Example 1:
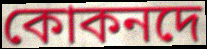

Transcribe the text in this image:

কোকনদে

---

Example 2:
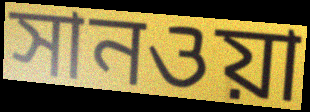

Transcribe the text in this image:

সানওয়া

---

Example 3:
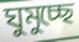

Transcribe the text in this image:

ঘুমুচ্ছে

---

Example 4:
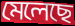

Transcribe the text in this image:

মেলেছে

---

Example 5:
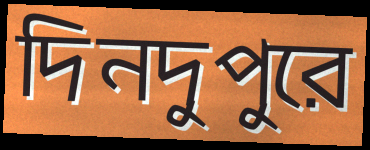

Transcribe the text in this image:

দিনদুপুরে